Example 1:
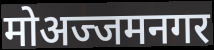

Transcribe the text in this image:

मोअज्जमनगर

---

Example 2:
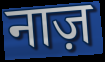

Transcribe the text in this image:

नाज़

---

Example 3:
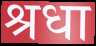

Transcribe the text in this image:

श्रधा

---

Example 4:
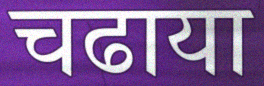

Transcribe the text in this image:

चढाया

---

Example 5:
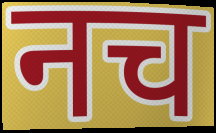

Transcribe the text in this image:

नच